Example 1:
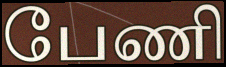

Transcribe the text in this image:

பேணி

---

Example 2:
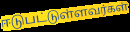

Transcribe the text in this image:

ஈடுபட்டுள்ளவர்கள்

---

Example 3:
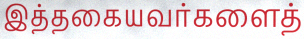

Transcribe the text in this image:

இத்தகையவர்களைத்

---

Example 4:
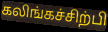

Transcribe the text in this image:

கலிங்கச்சிற்பி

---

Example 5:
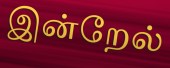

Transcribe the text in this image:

இன்றேல்